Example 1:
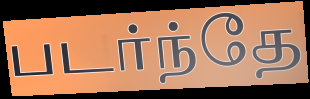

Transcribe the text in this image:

படர்ந்தே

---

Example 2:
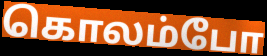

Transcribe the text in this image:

கொலம்போ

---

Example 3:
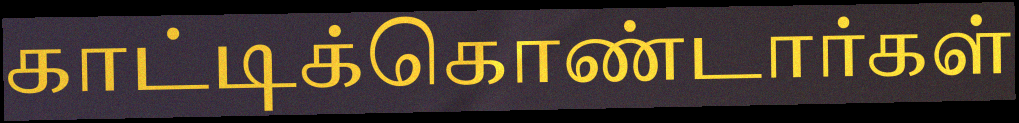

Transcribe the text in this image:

காட்டிக்கொண்டார்கள்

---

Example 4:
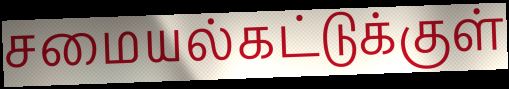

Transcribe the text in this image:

சமையல்கட்டுக்குள்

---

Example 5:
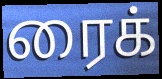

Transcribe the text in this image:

ரைக்